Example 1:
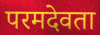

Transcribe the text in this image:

परमदेवता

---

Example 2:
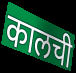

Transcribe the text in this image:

कालची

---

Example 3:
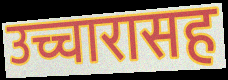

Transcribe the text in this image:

उच्चारासह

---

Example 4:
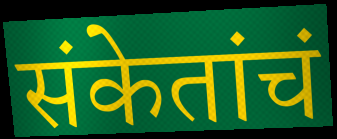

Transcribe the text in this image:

संकेतांचं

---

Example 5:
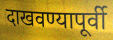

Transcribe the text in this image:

दाखवण्यापूर्वी